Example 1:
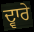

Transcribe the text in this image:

ਦ੍ਵਾਰੇ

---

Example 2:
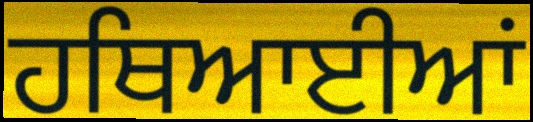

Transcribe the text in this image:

ਹਥਿਆਈਆਂ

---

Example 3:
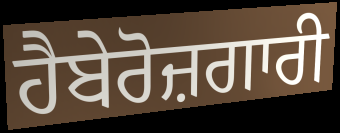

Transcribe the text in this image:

ਹੈਬੇਰੋਜ਼ਗਾਰੀ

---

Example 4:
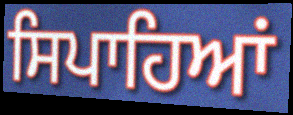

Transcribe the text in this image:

ਸਿਪਾਹਿਆਂ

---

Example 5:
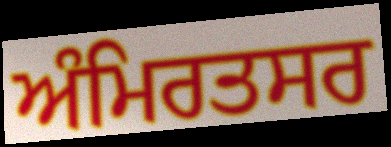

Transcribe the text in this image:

ਅੰਮਿਰਤਸਰ